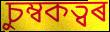
চুম্বকত্বৰ